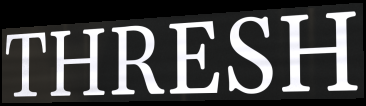
THRESH